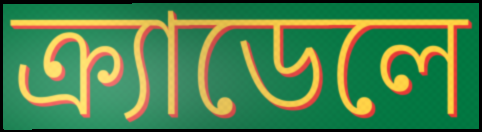
ক্র্যাডেলে